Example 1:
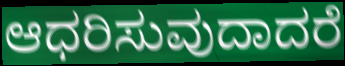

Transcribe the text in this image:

ಆಧರಿಸುವುದಾದರೆ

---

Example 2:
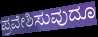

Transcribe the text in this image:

ಪ್ರವೇಶಿಸುವುದೂ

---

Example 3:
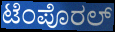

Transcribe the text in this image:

ಟೆಂಪೊರಲ್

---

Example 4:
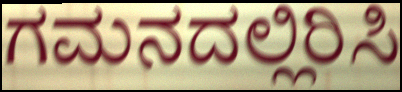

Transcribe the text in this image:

ಗಮನದಲ್ಲಿರಿಸಿ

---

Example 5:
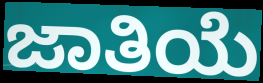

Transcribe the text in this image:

ಜಾತಿಯೆ